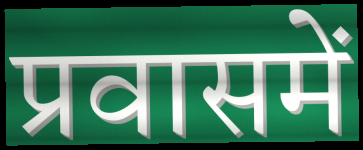
प्रवासमें